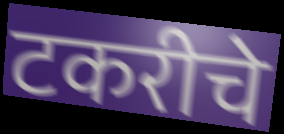
टकरीचे